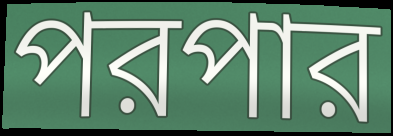
পরপার